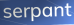
serpant